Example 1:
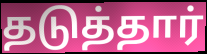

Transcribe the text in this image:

தடுத்தார்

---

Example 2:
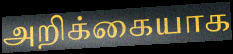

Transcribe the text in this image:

அறிக்கையாக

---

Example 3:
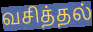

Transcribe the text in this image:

வசித்தல்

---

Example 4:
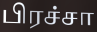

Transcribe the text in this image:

பிரச்சா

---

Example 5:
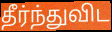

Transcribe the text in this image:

தீர்ந்துவிட